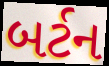
બર્ટન